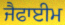
ਜੈਫਾਈਮ